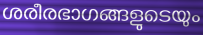
ശരീരഭാഗങ്ങളുടെയും